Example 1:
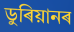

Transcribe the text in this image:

ডুৰিয়ানৰ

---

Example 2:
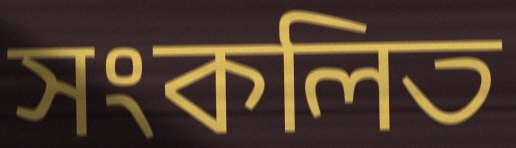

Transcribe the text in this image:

সংকলিত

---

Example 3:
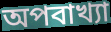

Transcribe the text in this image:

অপবাখ্যা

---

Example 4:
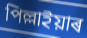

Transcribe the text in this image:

পিল্লাইয়াৰ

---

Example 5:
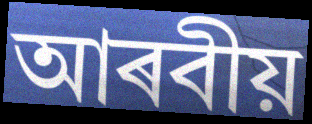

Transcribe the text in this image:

আৰবীয়